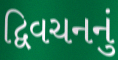
દ્વિવચનનું